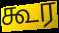
கூர